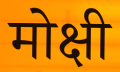
मोक्षी